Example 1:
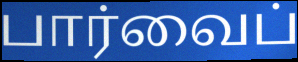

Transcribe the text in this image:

பார்வைப்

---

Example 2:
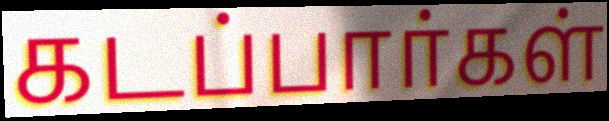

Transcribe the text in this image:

கடப்பார்கள்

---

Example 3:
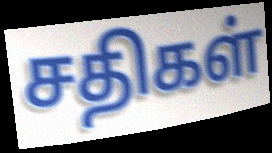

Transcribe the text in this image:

சதிகள்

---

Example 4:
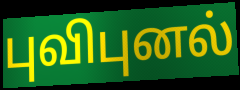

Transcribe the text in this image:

புவிபுனல்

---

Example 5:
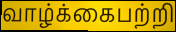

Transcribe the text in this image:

வாழ்க்கைபற்றி